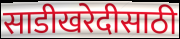
साडीखरेदीसाठी